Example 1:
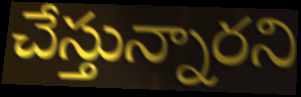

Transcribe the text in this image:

చేస్తున్నారని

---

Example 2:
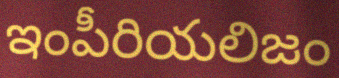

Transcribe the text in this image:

ఇంపీరియలిజం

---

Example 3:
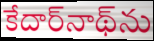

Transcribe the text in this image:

కేదార్‌నాథ్‌ను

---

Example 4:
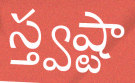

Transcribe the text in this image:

స్త్వష్టా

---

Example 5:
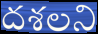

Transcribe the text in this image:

దశలని